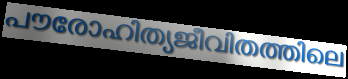
പൗരോഹിത്യജീവിതത്തിലെ